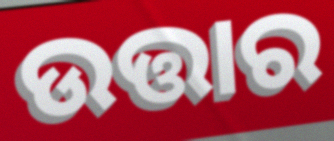
ଉତ୍ତାର